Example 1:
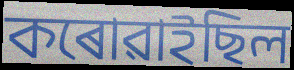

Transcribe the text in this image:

কৰোৱাইছিল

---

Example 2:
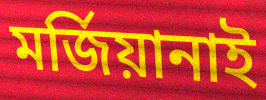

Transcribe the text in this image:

মৰ্জিয়ানাই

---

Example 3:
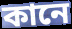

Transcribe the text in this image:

কানে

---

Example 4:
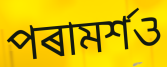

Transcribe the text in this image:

পৰামৰ্শও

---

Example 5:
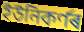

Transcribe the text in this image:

ইউনিকৰ্ণৰ